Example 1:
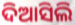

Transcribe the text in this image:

ଦିଆସିଲି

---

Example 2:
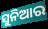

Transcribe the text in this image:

ସୁନିଆର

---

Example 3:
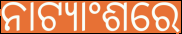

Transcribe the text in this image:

ନାଟ୍ୟାଂଶରେ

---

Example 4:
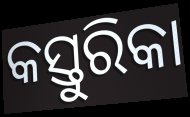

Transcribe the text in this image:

କସ୍ତୁରିକା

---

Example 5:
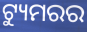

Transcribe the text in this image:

ଟ୍ୟୁମରର